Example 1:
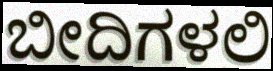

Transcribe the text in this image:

ಬೀದಿಗಳಲಿ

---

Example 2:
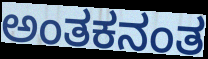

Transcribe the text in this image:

ಅಂತಕನಂತ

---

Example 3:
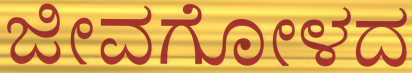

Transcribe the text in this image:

ಜೀವಗೋಳದ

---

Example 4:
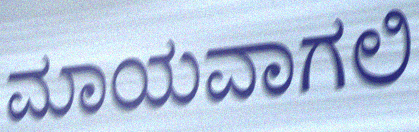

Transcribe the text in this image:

ಮಾಯವಾಗಲಿ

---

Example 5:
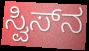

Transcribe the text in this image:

ಸ್ವಿಸ್‌ನ